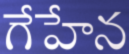
గేహేన